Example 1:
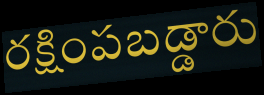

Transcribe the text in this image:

రక్షింపబడ్డారు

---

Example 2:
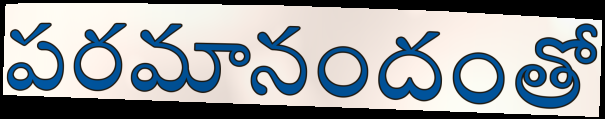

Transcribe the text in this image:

పరమానందంతో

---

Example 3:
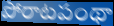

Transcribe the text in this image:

పోరాటపంథా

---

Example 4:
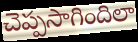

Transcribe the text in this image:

చెప్పసాగిందిలా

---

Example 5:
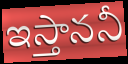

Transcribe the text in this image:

ఇస్తాననీ